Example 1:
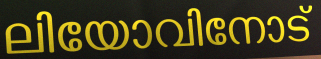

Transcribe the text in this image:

ലിയോവിനോട്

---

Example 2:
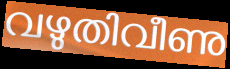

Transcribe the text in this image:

വഴുതിവീണു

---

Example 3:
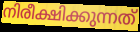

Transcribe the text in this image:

നിരീക്ഷിക്കുന്നത്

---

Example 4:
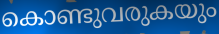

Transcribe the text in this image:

കൊണ്ടുവരുകയും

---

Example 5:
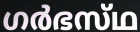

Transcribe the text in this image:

ഗർഭസ്‌ഥ